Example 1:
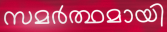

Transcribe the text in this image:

സമർത്ഥമായി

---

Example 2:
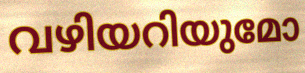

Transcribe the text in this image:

വഴിയറിയുമോ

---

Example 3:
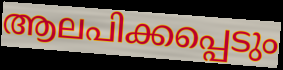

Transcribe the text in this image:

ആലപിക്കപ്പെടും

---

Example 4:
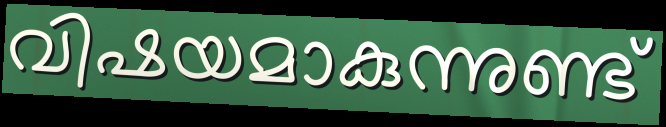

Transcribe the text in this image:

വിഷയമാകുന്നുണ്ട്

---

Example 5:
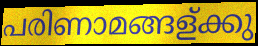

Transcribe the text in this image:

പരിണാമങ്ങള്ക്കു